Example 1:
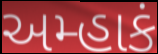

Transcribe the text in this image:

અમ્હાકં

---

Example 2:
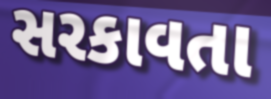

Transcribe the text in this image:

સરકાવતા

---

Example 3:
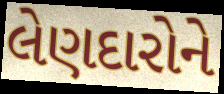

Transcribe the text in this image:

લેણદારોને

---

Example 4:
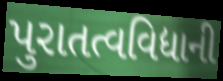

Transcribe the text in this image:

પુરાતત્વવિદ્યાની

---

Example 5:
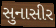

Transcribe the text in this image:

સુનાસીર